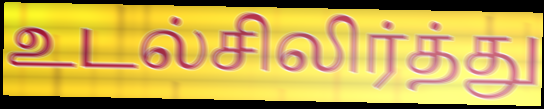
உடல்சிலிர்த்து